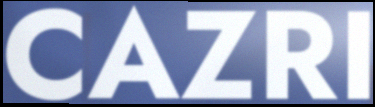
CAZRI